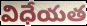
విధేయత